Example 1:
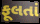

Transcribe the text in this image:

ફૂલતાં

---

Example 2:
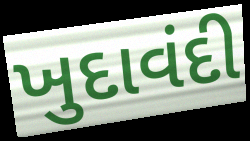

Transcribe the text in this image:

ખુદાવંદી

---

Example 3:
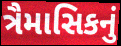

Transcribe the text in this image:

ત્રૈમાસિકનું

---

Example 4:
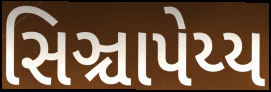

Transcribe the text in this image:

સિઞ્ચાપેય્ય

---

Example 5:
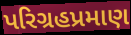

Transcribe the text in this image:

પરિગ્રહપ્રમાણ